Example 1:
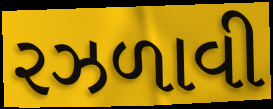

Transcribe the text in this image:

રઝળાવી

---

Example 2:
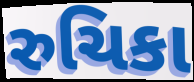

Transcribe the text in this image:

રુચિકા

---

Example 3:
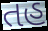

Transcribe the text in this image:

તહ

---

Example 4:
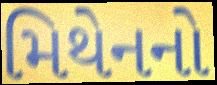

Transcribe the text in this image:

મિથેનનો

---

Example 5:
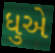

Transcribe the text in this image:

ધુએ